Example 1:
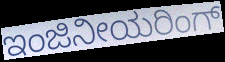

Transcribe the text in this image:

ಇಂಜಿನೀಯರಿಂಗ್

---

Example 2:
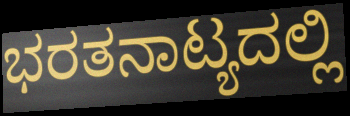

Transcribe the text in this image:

ಭರತನಾಟ್ಯದಲ್ಲಿ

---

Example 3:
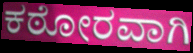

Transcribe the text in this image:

ಕಠೋರವಾಗಿ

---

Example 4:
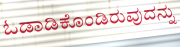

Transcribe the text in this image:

ಓಡಾಡಿಕೊಂಡಿರುವುದನ್ನು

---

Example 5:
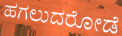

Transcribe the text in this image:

ಹಗಲುದರೋಡೆ